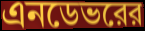
এনডেভরের